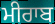
ਮੀਰਾਬ